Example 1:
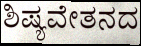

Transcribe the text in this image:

ಶಿಷ್ಯವೇತನದ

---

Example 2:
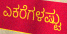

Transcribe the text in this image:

ಎಕರೆಗಳಷ್ಟು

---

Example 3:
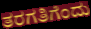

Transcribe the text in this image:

ತರಗತಿಗೆಂದು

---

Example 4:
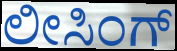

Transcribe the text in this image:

ಲೀಸಿಂಗ್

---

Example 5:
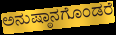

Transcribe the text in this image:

ಅನುಷ್ಠಾನಗೊಂಡರೆ